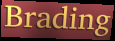
Brading